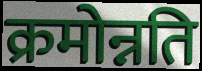
क्रमोन्नति